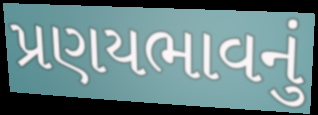
પ્રણયભાવનું